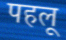
पहलू